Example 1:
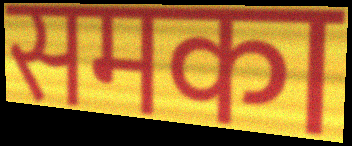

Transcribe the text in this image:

समका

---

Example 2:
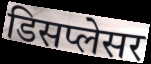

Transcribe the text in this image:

डिसप्लेसर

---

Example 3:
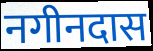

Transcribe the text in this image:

नगीनदास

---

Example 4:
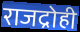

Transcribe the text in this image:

राजद्रोही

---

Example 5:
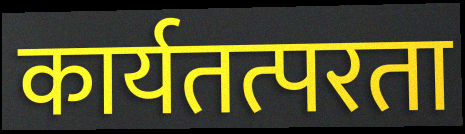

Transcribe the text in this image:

कार्यतत्परता